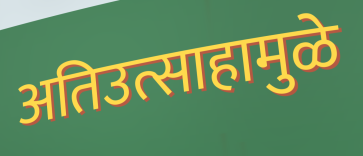
अतिउत्साहामुळे